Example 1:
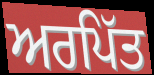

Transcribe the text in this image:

ਅਰਪਿੱਤ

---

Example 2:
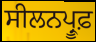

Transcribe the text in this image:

ਸੀਲਨਪ੍ਰੂਫ਼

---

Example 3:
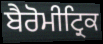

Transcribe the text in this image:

ਬੈਰੋਮੀਟ੍ਰਿਕ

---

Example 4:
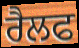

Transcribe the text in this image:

ਰੈਲਫ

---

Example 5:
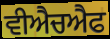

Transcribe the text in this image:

ਵੀਐਚਐਫ